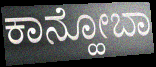
ಕಾನ್ಹೋಬಾ